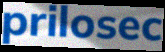
prilosec